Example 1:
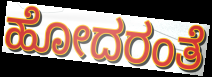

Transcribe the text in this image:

ಹೋದರಂತೆ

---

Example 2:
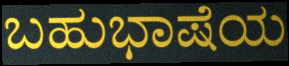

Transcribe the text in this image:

ಬಹುಭಾಷೆಯ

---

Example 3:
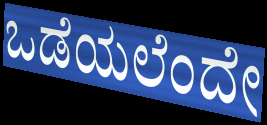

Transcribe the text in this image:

ಒಡೆಯಲೆಂದೇ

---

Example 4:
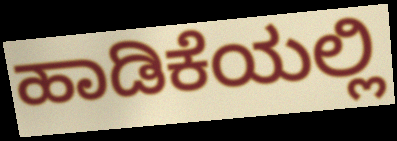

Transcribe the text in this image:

ಹಾಡಿಕೆಯಲ್ಲಿ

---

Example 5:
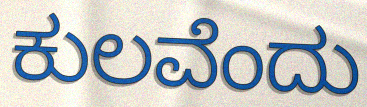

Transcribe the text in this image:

ಕುಲವೆಂದು